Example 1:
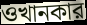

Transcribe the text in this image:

ওখানকার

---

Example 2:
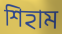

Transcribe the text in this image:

শিহাম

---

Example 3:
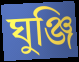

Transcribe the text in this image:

ঘুঞ্জি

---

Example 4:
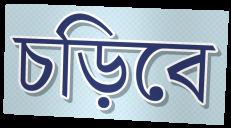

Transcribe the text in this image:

চড়িবে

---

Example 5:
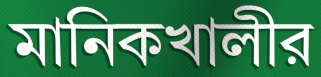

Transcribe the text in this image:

মানিকখালীর